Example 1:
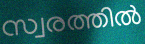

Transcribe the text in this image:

സ്വരത്തിൽ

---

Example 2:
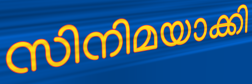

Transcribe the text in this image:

സിനിമയാക്കി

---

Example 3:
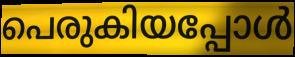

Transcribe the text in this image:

പെരുകിയപ്പോൾ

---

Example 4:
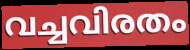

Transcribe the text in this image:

വച്ചവിരതം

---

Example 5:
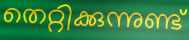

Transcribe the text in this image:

തെറ്റിക്കുന്നുണ്ട്